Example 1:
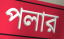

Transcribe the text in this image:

পলার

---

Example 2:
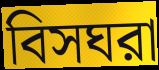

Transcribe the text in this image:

বিসঘরা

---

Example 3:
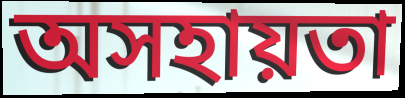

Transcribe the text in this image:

অসহায়তা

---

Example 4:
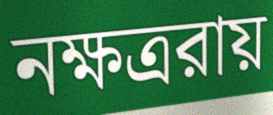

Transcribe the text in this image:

নক্ষত্ররায়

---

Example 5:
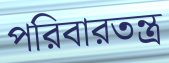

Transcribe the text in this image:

পরিবারতন্ত্র